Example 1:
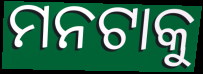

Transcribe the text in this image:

ମନଟାକୁ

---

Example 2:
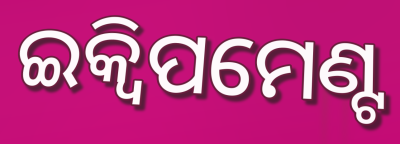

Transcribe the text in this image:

ଇକ୍ୱିପମେଣ୍ଟ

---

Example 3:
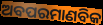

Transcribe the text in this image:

ଅବପରମାଣବିକ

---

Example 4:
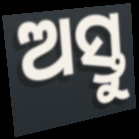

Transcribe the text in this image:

ଅସ୍ତୁ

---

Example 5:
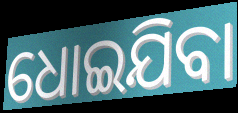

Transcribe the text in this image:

ଧୋଇଯିବା